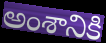
అంశానికి